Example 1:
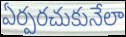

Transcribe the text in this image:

ఏర్పరచుకునేలా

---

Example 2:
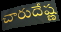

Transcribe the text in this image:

చారుదేష్ణ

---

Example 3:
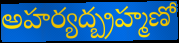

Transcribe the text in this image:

అహర్యద్బ్రహ్మణో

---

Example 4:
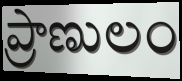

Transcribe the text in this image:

ప్రాణులం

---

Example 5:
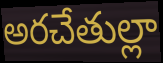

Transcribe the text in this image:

అరచేతుల్లా